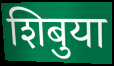
शिबुया